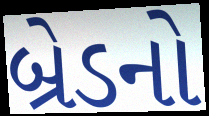
બ્રેડનો